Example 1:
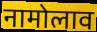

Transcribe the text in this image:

नामोलाव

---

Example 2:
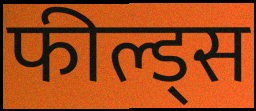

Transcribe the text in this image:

फील्ड्स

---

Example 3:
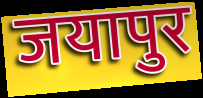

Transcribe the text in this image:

जयापुर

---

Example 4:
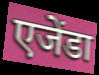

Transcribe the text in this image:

एजेंडा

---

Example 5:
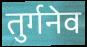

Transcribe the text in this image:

तुर्गनेव